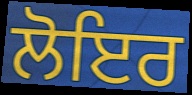
ਲੋਇਰ